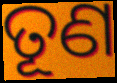
ତୂଣ